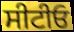
ਸੀਟੀਓ